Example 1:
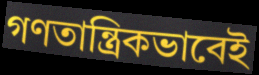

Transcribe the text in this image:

গণতান্ত্রিকভাবেই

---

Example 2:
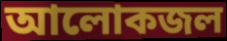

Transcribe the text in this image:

আলোকজল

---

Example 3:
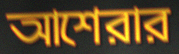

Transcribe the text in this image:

আশেরার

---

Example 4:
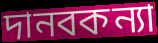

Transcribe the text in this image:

দানবকন্যা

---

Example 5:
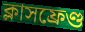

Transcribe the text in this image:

ক্লাসফ্রেণ্ড